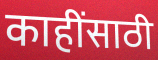
काहींसाठी